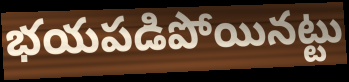
భయపడిపోయినట్టు